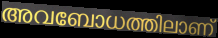
അവബോധത്തിലാണ്